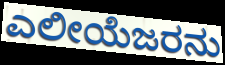
ಎಲೀಯೆಜರನು